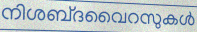
നിശബ്‌ദവൈറസുകൾ